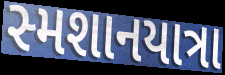
સ્મશાનયાત્રા